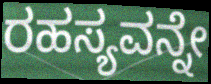
ರಹಸ್ಯವನ್ನೇ